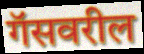
गॅसवरील